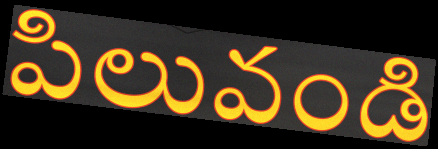
పిలువండి